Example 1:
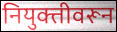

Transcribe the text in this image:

नियुक्तीवरून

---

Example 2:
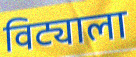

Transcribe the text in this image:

विट्याला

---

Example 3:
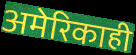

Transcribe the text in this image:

अमेरिकाही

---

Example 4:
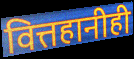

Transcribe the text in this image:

वित्तहानीही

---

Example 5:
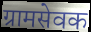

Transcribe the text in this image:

ग्रामसेवक